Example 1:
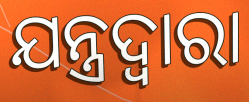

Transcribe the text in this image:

ଯନ୍ତ୍ରଦ୍ବାରା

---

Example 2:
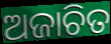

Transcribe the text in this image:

ଅଜାଚିତ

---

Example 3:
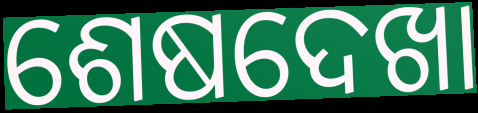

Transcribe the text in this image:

ଶେଷଦେଖା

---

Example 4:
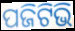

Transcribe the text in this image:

ପଜିଟିଭି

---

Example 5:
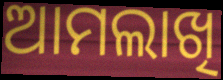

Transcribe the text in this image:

ଆମଲାଖି